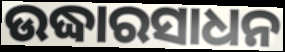
ଉଦ୍ଧାରସାଧନ